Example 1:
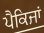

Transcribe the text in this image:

ਪੈਕਿਜਾਂ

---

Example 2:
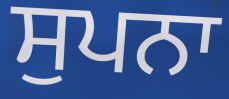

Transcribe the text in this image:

ਸੁਪਨਾ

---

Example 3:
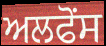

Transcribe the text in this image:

ਅਲਫੋਂਸ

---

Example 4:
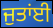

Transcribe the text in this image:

ਜੁਤਾਂਈ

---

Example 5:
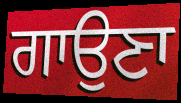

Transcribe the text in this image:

ਗਾਉਣਾ